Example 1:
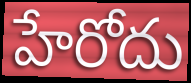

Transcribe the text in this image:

హేరోదు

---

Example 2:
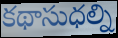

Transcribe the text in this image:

కథాసుధల్ని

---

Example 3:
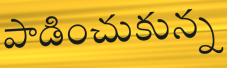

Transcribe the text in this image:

పాడించుకున్న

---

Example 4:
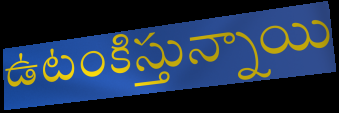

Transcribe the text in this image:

ఉటంకిస్తున్నాయి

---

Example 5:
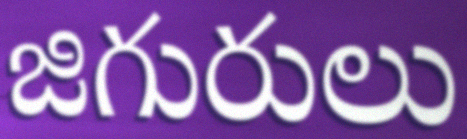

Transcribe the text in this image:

జిగురులు